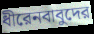
ধীরেনবাবুদের